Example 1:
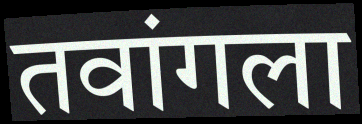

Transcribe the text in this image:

तवांगला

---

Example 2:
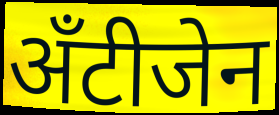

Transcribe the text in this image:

अँटीजेन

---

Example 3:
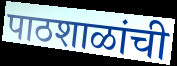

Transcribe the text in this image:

पाठशाळांची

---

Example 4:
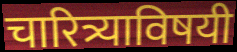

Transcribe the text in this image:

चारित्र्याविषयी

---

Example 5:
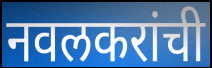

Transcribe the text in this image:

नवलकरांची